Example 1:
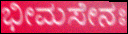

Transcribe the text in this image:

ಭೀಮಸೇನಃ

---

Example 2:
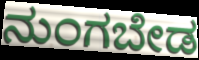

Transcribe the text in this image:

ನುಂಗಬೇಡ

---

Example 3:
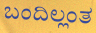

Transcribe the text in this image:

ಬಂದಿಲ್ಲಂತ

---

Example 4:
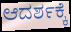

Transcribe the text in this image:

ಆದರ್ಶಕ್ಕೆ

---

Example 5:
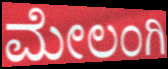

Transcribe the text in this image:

ಮೇಲಂಗಿ